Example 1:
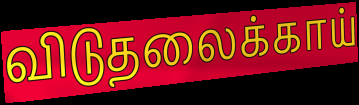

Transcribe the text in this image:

விடுதலைக்காய்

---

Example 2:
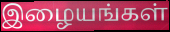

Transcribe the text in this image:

இழையங்கள்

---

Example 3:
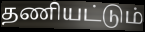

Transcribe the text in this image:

தணியட்டும்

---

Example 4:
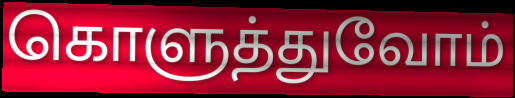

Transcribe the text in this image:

கொளுத்துவோம்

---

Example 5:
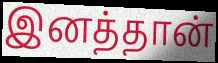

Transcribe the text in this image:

இனத்தான்